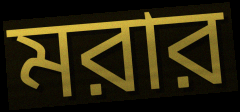
মরার